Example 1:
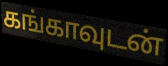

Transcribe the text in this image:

கங்காவுடன்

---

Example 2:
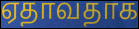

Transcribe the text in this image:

ஏதாவதாக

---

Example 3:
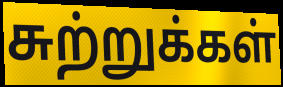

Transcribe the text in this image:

சுற்றுக்கள்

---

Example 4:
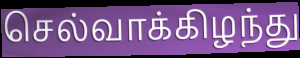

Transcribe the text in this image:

செல்வாக்கிழந்து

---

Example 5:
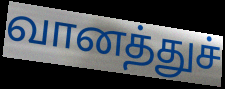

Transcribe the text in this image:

வானத்துச்